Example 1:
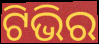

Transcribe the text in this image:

ଟିଭିର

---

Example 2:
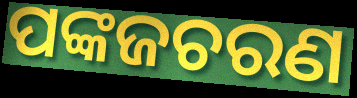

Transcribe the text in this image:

ପଙ୍କଜଚରଣ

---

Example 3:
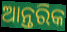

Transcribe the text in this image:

ଆନ୍ତରିକ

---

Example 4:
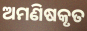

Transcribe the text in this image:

ଅମଣିଷକୃତ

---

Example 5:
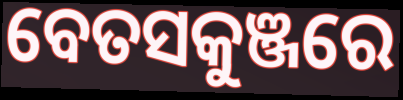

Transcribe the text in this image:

ବେତସକୁଞ୍ଜରେ